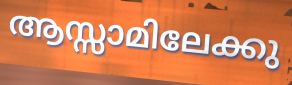
ആസ്സാമിലേക്കു